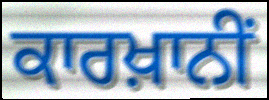
ਕਾਰਖ਼ਾਨੀਂ